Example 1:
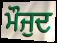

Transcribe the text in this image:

ਮੌਜੁਦ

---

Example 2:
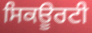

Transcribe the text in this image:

ਸਿਕਊਰਟੀ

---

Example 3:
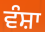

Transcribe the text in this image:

ਵੰਸ਼ਾ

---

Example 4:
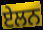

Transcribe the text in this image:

ਏਲਨ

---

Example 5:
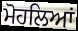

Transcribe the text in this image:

ਮੋਹਲਿਆਂ